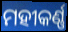
ମହୀକର୍ଣ୍ଣ